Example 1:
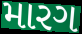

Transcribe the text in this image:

મારગ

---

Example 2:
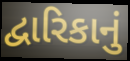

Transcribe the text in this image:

દ્વારિકાનું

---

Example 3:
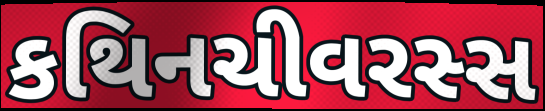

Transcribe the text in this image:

કથિનચીવરસ્સ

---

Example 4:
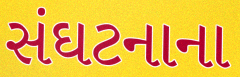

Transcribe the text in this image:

સંઘટનાના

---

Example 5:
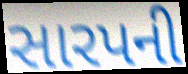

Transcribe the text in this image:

સારપની